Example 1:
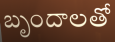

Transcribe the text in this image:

బృందాలతో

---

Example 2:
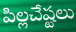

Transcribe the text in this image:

పిల్లచేష్టలు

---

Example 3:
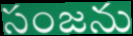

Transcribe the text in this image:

సంజను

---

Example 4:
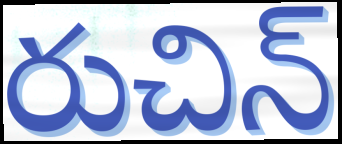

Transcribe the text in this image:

రుచిన్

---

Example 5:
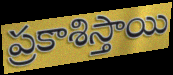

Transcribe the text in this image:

ప్రకాశిస్తాయి